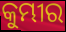
କୁମ୍ଭୀର